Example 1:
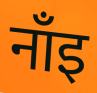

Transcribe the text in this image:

नाँइ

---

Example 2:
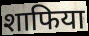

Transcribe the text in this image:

शाफिया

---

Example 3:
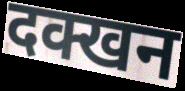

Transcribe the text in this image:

दक्खन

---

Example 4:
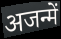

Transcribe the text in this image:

अजन्में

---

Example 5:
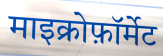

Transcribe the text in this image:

माइक्रोफ़ॉर्मेट